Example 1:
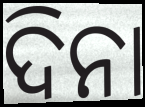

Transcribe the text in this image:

ଦିନା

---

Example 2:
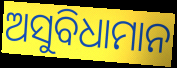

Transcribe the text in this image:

ଅସୁବିଧାମାନ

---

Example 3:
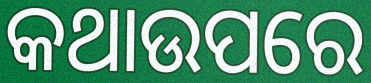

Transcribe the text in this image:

କଥାଉପରେ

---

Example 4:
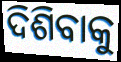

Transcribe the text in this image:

ଦିଶିବାକୁ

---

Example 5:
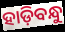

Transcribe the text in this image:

ହାଡ଼ିବନ୍ଧୁ